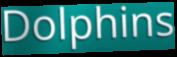
Dolphins